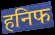
हनिफ